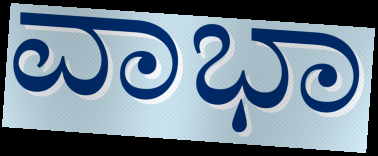
ವಾಭಾ